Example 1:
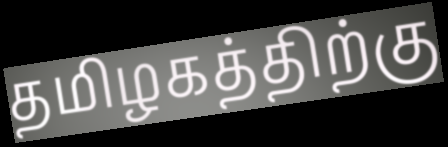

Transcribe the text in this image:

தமிழகத்திற்கு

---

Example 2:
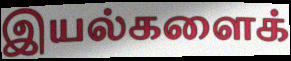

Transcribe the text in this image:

இயல்களைக்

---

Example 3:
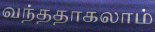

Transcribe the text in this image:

வந்ததாகலாம்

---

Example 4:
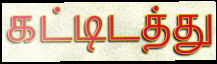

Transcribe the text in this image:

கட்டிடத்து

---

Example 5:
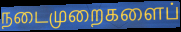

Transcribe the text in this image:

நடைமுறைகளைப்